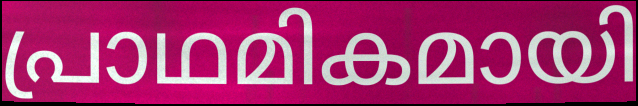
പ്രാഥമികമായി